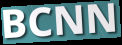
BCNN